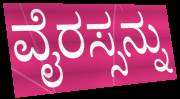
ವೈರಸ್ಸನ್ನು